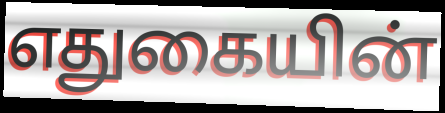
எதுகையின்